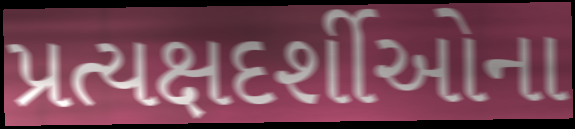
પ્રત્યક્ષદર્શીઓના